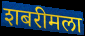
शबरीमला